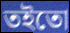
তইতো